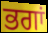
ਭਗਾਂ